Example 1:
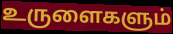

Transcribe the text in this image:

உருளைகளும்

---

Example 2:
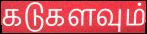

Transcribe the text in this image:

கடுகளவும்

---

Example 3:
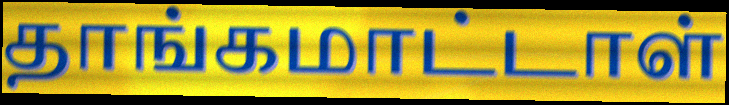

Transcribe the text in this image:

தாங்கமாட்டாள்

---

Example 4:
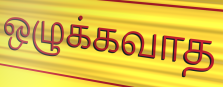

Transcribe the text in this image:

ஒழுக்கவாத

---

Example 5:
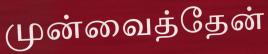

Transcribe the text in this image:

முன்வைத்தேன்